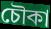
চৌকা